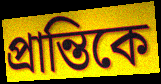
প্রান্তিকে